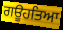
ਗਊਹਤਿਆ